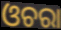
ଓଚରା